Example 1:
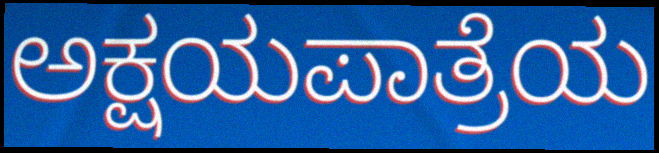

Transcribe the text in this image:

ಅಕ್ಷಯಪಾತ್ರೆಯ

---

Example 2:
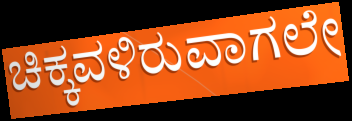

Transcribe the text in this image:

ಚಿಕ್ಕವಳಿರುವಾಗಲೇ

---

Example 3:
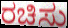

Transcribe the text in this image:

ರಚಿಸು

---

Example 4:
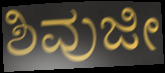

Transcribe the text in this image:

ಶಿವುಜೀ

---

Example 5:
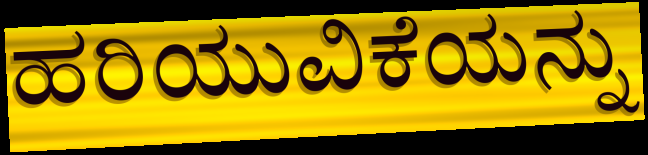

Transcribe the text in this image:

ಹರಿಯುವಿಕೆಯನ್ನು